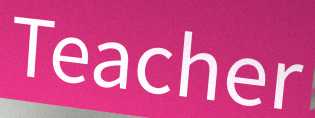
Teacher